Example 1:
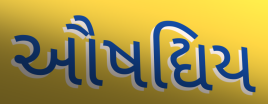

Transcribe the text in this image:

ઔષદ્યિય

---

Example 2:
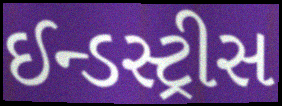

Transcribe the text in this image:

ઈન્ડસ્ટ્રીસ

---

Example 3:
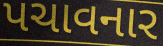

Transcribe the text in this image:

પચાવનાર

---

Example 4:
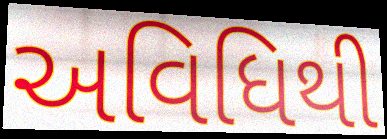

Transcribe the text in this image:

અવિધિથી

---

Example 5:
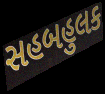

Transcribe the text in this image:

સહબહુલક